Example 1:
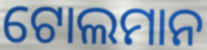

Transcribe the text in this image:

ଟୋଲମାନ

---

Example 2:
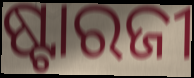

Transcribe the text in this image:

ଷ୍ଟାରଜୀ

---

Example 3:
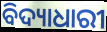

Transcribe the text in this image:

ବିଦ୍ୟାଧାରୀ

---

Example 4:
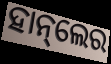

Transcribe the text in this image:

ହାନ୍‌ଲେର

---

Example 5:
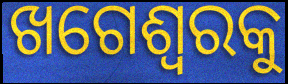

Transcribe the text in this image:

ଖଗେଶ୍ୱରକୁ